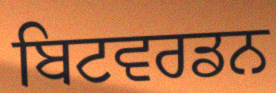
ਬਿਟਵਰਡਨ